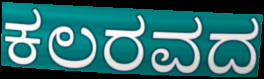
ಕಲರವದ